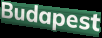
Budapest